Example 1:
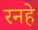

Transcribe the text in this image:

रनहे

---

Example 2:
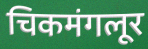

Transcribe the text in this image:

चिकमंगलूर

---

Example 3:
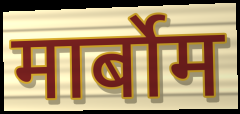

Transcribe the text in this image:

मार्बोम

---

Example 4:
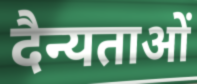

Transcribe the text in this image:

दैन्यताओं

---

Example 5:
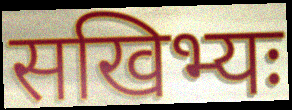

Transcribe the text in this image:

सखिभ्यः